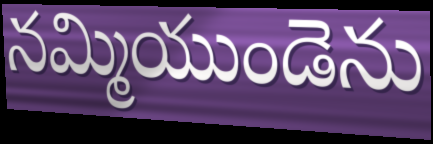
నమ్మియుండెను